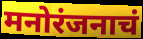
मनोरंजनाचं